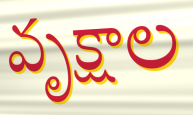
వృక్షాల